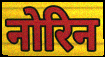
नोरिन